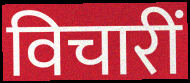
विचारीं